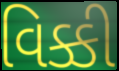
વિક્કી